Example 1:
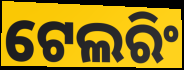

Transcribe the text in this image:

ଟେଲରିଂ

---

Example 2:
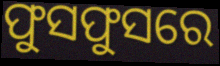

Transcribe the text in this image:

ଫୁସଫୁସରେ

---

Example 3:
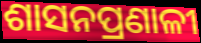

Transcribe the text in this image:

ଶାସନପ୍ରଣାଳୀ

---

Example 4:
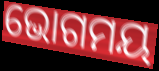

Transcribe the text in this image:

ଭୋଗମୟ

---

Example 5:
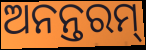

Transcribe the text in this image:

ଅନନ୍ତରମ୍